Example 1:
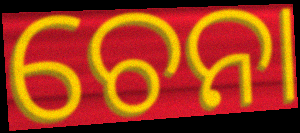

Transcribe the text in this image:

ଚେନା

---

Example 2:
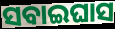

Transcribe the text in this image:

ସବାଇଘାସ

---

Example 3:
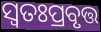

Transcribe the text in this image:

ସ୍ୱତଃପ୍ରବୃତ୍ତ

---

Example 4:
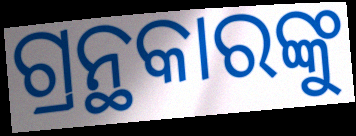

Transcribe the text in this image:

ଗ୍ରନ୍ଥକାରଙ୍କୁ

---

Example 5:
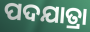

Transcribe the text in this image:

ପଦଯାତ୍ରା